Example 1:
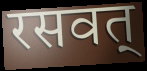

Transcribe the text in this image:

रसवत्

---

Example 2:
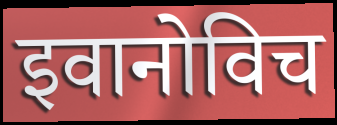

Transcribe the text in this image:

इवानोविच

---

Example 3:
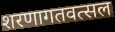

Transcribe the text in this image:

शरणागतवत्सल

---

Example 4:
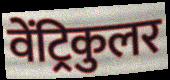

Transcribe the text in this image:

वेंट्रिकुलर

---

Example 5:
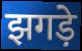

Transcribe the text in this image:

झगड़े